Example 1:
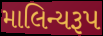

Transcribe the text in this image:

માલિન્યરૂપ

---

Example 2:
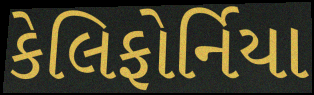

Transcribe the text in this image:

કેલિફોર્નિયા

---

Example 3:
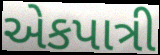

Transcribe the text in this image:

એકપાત્રી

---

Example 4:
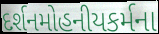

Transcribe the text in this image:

દર્શનમોહનીયકર્મના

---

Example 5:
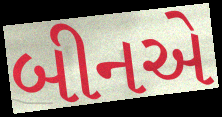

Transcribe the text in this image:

બીનએ